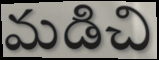
మడిచి